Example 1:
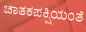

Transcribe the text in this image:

ಚಾತಕಪಕ್ಷಿಯಂತೆ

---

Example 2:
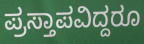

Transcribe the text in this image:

ಪ್ರಸ್ತಾಪವಿದ್ದರೂ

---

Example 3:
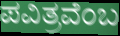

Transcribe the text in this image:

ಪವಿತ್ರವೆಂಬ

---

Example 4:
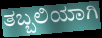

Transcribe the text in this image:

ತಬ್ಬಲಿಯಾಗಿ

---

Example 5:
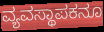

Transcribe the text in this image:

ವ್ಯವಸ್ಥಾಪಕನೂ